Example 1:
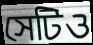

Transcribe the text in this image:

সেটিও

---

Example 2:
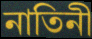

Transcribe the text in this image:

নাতিনী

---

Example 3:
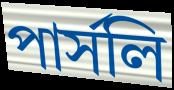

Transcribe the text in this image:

পার্সলি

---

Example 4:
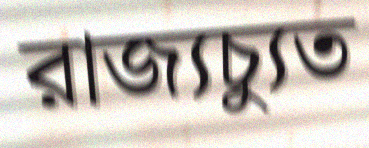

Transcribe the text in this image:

রাজ্যচ্যুত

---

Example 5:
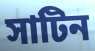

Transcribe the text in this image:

সাটিন